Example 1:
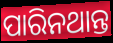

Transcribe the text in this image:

ପାରିନଥାନ୍ତ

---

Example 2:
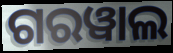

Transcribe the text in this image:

ଗରୱାଲ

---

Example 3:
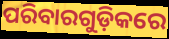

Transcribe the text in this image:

ପରିବାରଗୁଡ଼ିକରେ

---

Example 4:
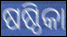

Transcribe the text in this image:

ଷଷ୍ଠିକା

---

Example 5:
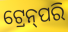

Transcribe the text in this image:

ଟ୍ରେନ୍‌ପରି